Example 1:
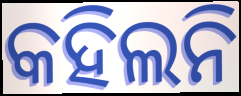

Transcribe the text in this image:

କହିଲନି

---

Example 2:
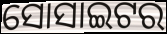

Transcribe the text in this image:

ସୋସାଇଟର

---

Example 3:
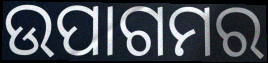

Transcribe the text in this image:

ଉପାଗମର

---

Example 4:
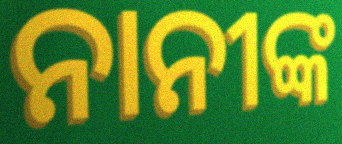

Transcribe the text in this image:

ନାନୀଙ୍କ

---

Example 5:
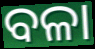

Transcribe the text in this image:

ବଳା